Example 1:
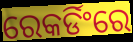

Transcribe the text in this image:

ରେକର୍ଡିଂରେ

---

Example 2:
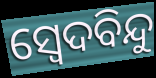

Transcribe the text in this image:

ସ୍ଵେଦବିନ୍ଦୁ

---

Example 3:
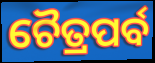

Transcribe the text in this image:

ଚୈତ୍ରପର୍ବ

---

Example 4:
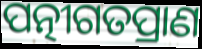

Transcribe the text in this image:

ପତ୍ନୀଗତପ୍ରାଣ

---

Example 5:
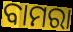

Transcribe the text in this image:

ବାମରା